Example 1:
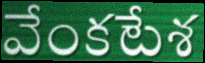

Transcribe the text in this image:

వేంకటేశ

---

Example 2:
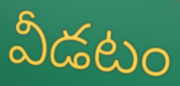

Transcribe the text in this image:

వీడటం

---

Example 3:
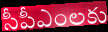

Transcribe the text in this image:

సీపీఎంలకు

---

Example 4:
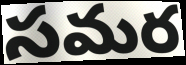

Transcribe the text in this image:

సమర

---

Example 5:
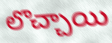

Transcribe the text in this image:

లొచ్చాయి